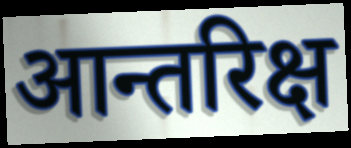
आन्तरिक्ष